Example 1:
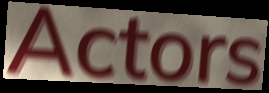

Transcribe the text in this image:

Actors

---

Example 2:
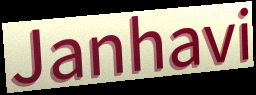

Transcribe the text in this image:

Janhavi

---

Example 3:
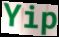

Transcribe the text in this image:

Yip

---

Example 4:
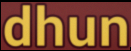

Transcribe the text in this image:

dhun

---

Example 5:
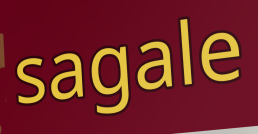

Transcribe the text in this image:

sagale